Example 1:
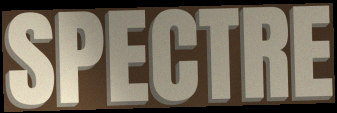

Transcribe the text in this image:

SPECTRE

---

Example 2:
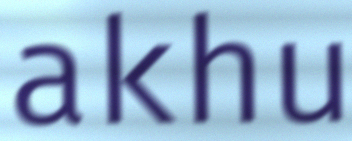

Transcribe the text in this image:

akhu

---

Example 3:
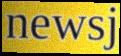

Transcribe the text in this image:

newsj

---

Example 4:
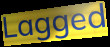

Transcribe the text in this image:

Lagged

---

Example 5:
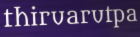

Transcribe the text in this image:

thiruarutpa